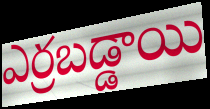
ఎర్రబడ్డాయి